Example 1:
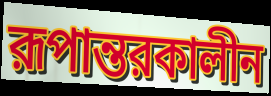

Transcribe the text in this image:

রূপান্তরকালীন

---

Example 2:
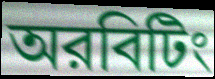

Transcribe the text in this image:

অরবিটিং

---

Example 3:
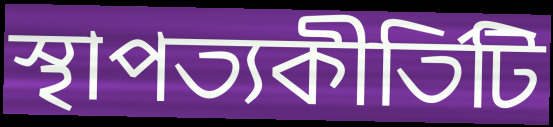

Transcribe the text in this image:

স্থাপত্যকীর্তিটি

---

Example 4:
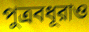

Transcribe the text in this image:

পুত্রবধূরাও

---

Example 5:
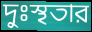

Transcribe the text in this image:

দুঃস্থতার